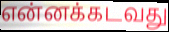
என்னக்கடவது